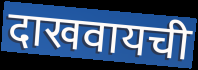
दाखवायची